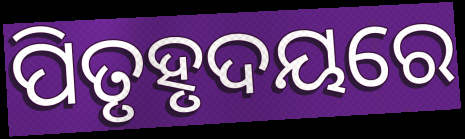
ପିତୃହୃଦୟରେ